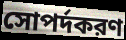
সোপর্দকরণ